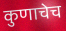
कुणाचेच